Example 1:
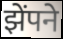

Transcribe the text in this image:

झेंपने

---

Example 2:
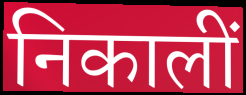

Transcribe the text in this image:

निकालीं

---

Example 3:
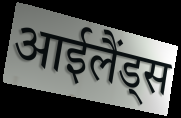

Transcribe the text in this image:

आईलैंड्स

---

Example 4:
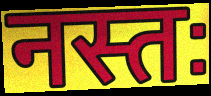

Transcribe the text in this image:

नस्तः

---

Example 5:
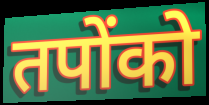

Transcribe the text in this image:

तपोंको